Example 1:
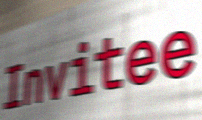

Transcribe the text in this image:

Invitee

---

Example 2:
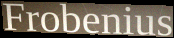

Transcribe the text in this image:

Frobenius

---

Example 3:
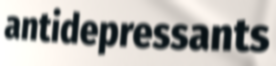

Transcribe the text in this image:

antidepressants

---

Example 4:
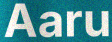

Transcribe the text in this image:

Aaru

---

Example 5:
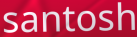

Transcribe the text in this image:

santosh